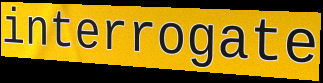
interrogate